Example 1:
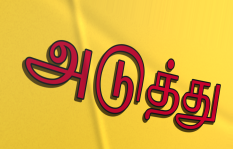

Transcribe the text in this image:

அடுத்து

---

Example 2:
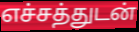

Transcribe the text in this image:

எச்சத்துடன்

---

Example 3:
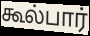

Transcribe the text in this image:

கூல்பார்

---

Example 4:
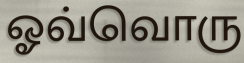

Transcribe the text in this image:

ஓவ்வொரு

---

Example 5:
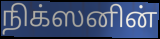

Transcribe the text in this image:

நிக்ஸனின்